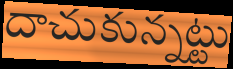
దాచుకున్నట్టు